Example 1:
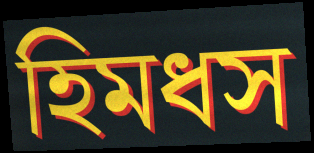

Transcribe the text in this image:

হিমধস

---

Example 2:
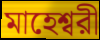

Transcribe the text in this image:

মাহেশ্বরী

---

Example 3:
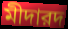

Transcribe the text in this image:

মীদারদ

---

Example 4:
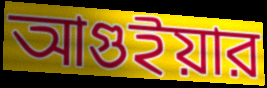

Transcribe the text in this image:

আগুইয়ার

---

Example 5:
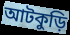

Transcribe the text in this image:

আটকুড়ি